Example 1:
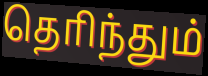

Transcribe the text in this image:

தெரிந்தும்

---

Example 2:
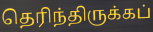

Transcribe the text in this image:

தெரிந்திருக்கப்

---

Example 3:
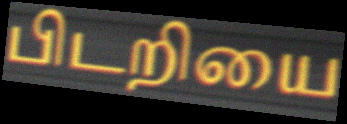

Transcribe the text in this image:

பிடறியை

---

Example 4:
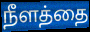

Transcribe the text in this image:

நீளத்தை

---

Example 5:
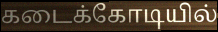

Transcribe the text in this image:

கடைக்கோடியில்